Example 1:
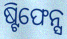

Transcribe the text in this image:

ଷ୍ଟିଫେନ୍ସ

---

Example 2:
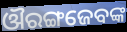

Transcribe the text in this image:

ଔରଙ୍ଗଜେବଙ୍କ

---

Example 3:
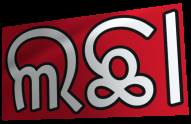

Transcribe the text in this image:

ଲଛା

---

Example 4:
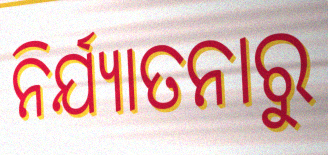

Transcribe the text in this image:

ନିର୍ଯ୍ୟାତନାରୁ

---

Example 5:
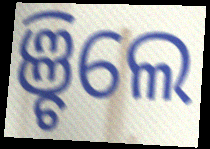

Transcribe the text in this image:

ଞ୍ଚିଲେ